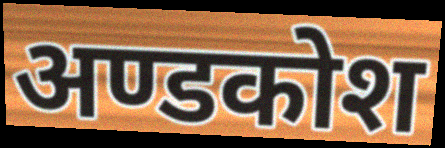
अण्डकोश